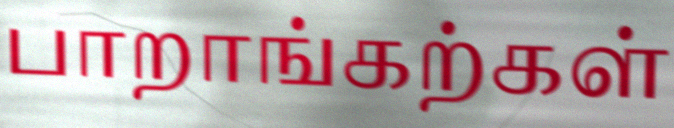
பாறாங்கற்கள்